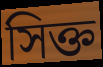
সিক্ত